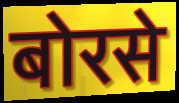
बोरसे